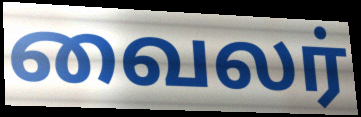
வைலர்